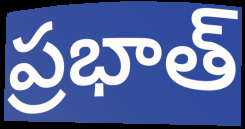
ప్రభాత్